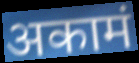
अकामं